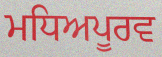
ਮਧਿਅਪੂਰਵ